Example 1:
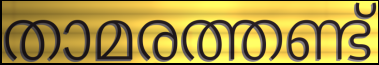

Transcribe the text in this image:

താമരത്തണ്ട്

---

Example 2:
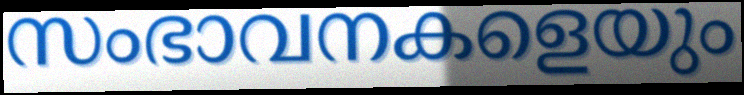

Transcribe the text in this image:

സംഭാവനകളെയും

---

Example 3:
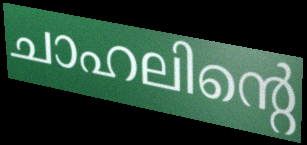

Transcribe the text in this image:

ചാഹലിന്റെ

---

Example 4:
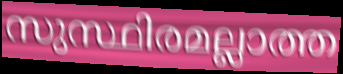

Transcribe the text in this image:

സുസ്ഥിരമല്ലാത്ത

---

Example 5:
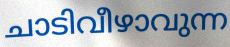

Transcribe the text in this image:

ചാടിവീഴാവുന്ന